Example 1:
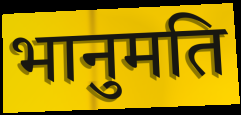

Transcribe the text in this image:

भानुमति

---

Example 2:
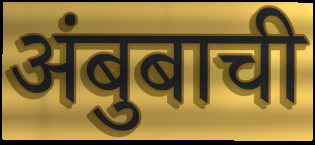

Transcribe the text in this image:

अंबुबाची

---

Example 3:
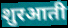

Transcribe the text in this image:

शुरआती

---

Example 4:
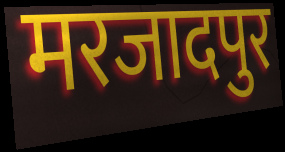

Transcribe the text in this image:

मरजादपुर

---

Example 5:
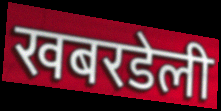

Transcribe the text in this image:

खबरडेली